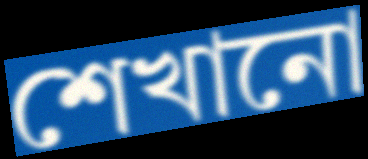
শেখানো